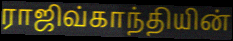
ராஜிவ்காந்தியின்